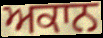
ਅਕਾਨ